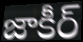
జాకీర్